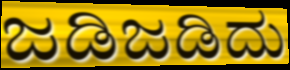
ಜಡಿಜಡಿದು